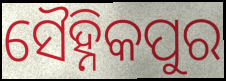
ସୈହ୍ନିକପୁର